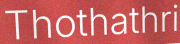
Thothathri